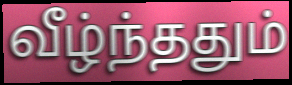
வீழ்ந்ததும்